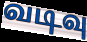
வடிவு